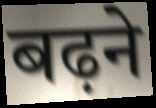
बढ़ने